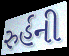
રુર્હની